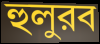
হুলুরব